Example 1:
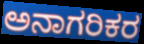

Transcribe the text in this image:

ಅನಾಗರಿಕರ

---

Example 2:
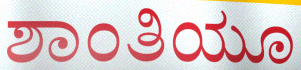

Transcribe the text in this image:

ಶಾಂತಿಯೂ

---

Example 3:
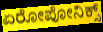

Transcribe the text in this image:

ಏರೋಪೋನಿಕ್ಸ್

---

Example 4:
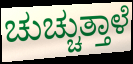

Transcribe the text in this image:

ಚುಚ್ಚುತ್ತಾಳೆ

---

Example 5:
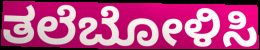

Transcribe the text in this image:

ತಲೆಬೋಳಿಸಿ